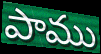
పాము